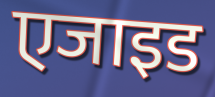
एजाइड